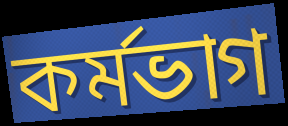
কৰ্মভাগ